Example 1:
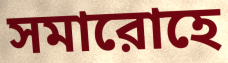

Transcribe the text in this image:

সমারোহে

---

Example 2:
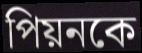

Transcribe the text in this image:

পিয়নকে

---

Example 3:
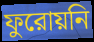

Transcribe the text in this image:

ফুরোয়নি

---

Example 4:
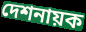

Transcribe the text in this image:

দেশনায়ক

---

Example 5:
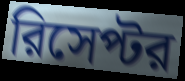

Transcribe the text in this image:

রিসেপ্টর